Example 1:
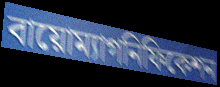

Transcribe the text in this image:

বায়োম্যাগনিফিকেশন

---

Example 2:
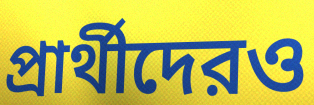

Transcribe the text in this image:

প্রার্থীদেরও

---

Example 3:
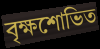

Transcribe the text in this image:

বৃক্ষশোভিত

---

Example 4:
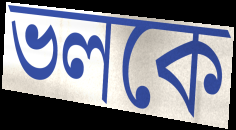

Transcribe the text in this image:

ভলকে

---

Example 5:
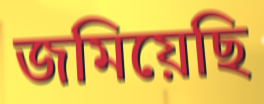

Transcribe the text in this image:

জমিয়েছি